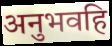
अनुभवहि